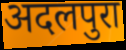
अदलपुरा